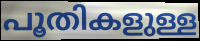
പൂതികളുള്ള